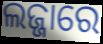
ଲଜ୍ଜାରେ